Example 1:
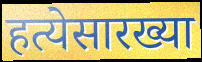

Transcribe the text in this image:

हत्येसारख्या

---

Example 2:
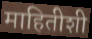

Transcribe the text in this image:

माहितीशी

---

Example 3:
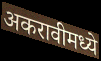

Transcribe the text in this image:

अकरावीमध्ये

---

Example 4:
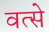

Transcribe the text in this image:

वत्से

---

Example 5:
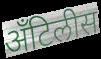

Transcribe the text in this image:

अँटिलीस